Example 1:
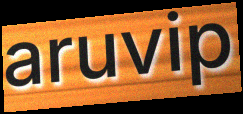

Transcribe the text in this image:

aruvip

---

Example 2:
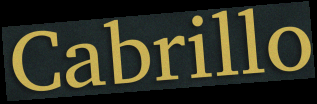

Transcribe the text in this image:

Cabrillo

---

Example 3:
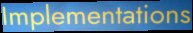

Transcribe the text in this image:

Implementations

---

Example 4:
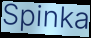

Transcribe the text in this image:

Spinka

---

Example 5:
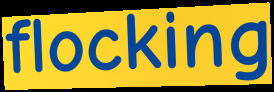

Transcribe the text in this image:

flocking